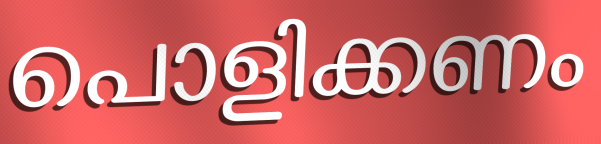
പൊളിക്കണം